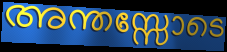
അന്തസ്സോടെ